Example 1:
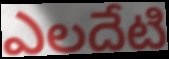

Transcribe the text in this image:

ఎలదేటి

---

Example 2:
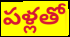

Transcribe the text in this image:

పళ్లతో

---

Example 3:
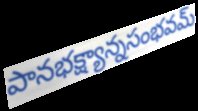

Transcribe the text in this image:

పానభక్ష్యాన్నసంభవమ్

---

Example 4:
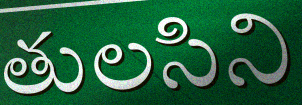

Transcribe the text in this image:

తులసిని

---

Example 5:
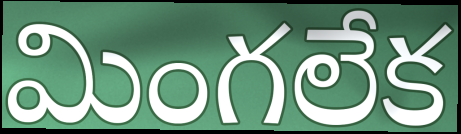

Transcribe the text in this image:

మింగలేక